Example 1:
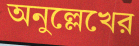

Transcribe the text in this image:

অনুল্লেখের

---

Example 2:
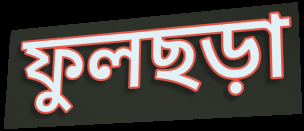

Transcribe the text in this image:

ফুলছড়া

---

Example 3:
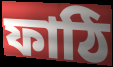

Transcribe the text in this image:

ফাঠি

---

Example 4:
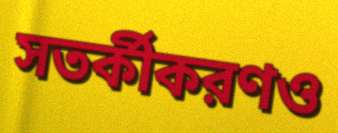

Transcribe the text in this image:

সতর্কীকরণও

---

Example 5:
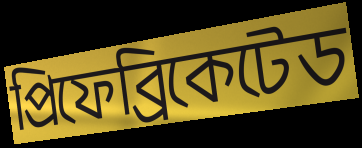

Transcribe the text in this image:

প্রিফেব্রিকেটেড